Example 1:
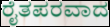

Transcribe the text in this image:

ರೈತಪರವಾದ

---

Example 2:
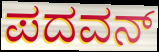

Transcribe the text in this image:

ಪದವನ್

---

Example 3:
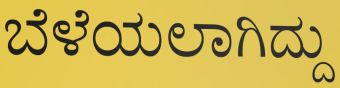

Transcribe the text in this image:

ಬೆಳೆಯಲಾಗಿದ್ದು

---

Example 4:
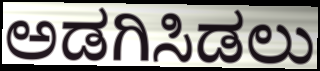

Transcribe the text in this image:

ಅಡಗಿಸಿಡಲು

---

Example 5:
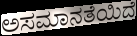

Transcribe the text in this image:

ಅಸಮಾನತೆಯಿದೆ